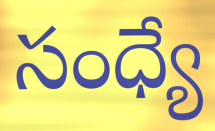
సంధ్యే